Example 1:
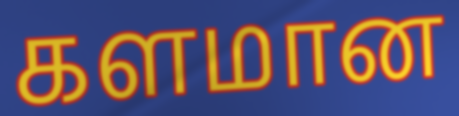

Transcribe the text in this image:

களமான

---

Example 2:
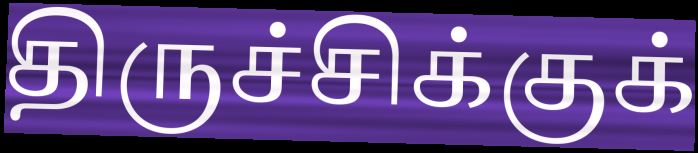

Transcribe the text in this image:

திருச்சிக்குக்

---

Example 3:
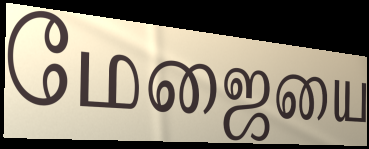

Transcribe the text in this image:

மேஜையை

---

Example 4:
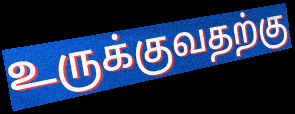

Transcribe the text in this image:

உருக்குவதற்கு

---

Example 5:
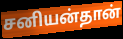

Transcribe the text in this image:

சனியன்தான்